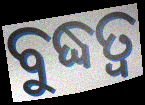
ବୁଦ୍ଧତ୍ୱ